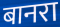
बानरा